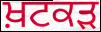
ਖ਼ਟਕੜ